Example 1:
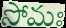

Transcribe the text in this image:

సోమః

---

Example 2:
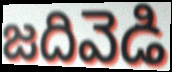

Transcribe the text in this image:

జదివెడి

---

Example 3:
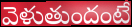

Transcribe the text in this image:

వెళుతుందంటే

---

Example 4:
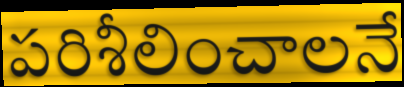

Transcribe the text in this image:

పరిశీలించాలనే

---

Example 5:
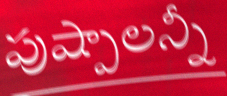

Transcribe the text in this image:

పుష్పాలన్నీ